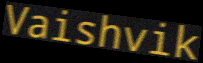
Vaishvik